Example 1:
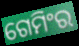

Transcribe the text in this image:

ଗେମିଂର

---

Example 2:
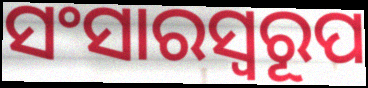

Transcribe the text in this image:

ସଂସାରସ୍ବରୂପ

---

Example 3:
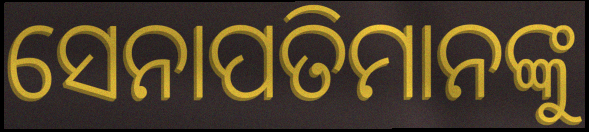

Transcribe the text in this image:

ସେନାପତିମାନଙ୍କୁ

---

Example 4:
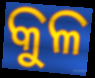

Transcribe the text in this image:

କୁଳ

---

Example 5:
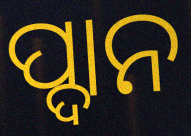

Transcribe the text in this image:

ପ୍ଦାନ